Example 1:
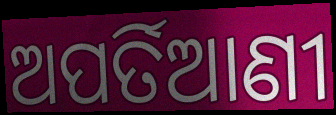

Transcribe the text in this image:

ଅପର୍ତିଆଣୀ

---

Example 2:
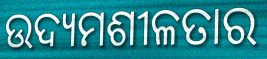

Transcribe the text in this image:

ଉଦ୍ୟମଶୀଳତାର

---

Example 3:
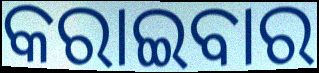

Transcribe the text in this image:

କରାଇବାର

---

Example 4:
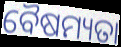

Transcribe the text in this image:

ବୈଷମ୍ୟତା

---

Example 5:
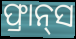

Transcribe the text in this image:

ଫ୍ରାନ୍‌ସ